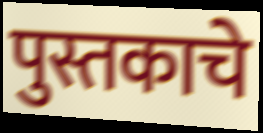
पुस्तकाचे